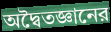
অদ্বৈতজ্ঞানের